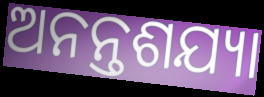
ଅନନ୍ତଶଯ୍ୟା